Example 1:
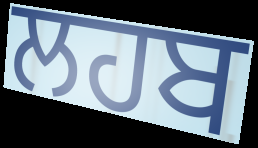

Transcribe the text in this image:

ਲਹਬ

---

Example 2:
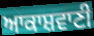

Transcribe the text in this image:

ਆਕਾਸ਼ਵਾਣੀ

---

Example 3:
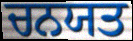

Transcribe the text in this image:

ਚਨਯਤ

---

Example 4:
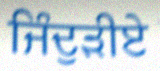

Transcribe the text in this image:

ਜਿੰਦੁੜੀਏ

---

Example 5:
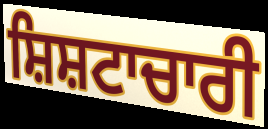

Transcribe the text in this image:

ਸ਼ਿਸ਼ਟਾਚਾਰੀ